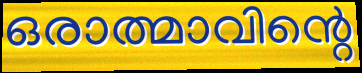
ഒരാത്മാവിന്റെ